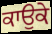
ਕਾਉਕੇ